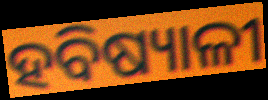
ହବିଷ୍ୟାଳୀ